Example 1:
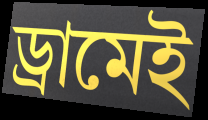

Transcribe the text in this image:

ড্রামেই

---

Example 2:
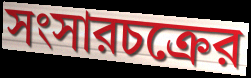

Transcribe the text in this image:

সংসারচক্রের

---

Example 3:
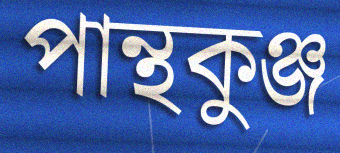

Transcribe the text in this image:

পান্থকুঞ্জ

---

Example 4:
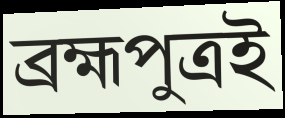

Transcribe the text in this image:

ব্রহ্মপুত্রই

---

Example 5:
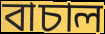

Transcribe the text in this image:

বাচাল